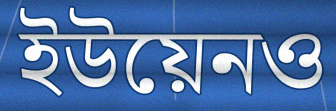
ইউয়েনও